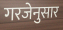
गरजेनुसार